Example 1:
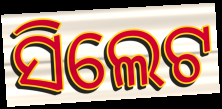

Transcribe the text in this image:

ସିଲେଟ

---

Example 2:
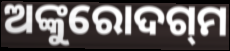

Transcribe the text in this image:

ଅଙ୍କୁରୋଦଗ୍‌ମ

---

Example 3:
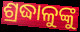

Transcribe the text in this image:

ଶ୍ରଦ୍ଧାଳୁଙ୍କୁ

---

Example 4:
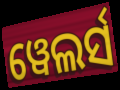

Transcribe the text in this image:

ୱେଲର୍ସ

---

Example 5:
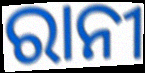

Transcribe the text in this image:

ରାନୀ